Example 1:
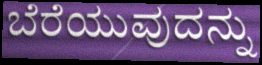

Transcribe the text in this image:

ಬೆರೆಯುವುದನ್ನು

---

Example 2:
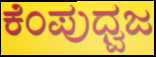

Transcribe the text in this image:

ಕೆಂಪುಧ್ವಜ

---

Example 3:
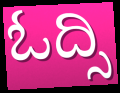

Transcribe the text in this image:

ಓದ್ಸಿ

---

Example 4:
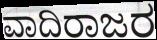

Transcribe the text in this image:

ವಾದಿರಾಜರ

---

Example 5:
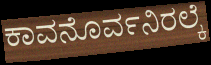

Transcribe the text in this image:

ಕಾವನೊರ್ವನಿರಲ್ಕೆ